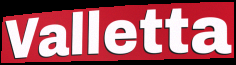
Valletta